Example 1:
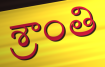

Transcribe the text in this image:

శ్రాంతి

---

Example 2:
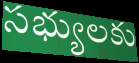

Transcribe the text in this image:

సభ్యులకు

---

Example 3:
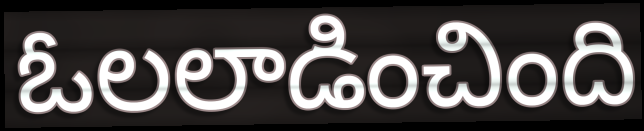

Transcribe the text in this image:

ఓలలాడించింది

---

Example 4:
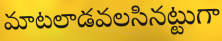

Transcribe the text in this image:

మాటలాడవలసినట్టుగా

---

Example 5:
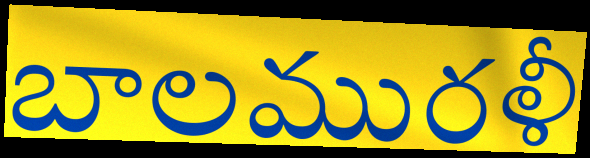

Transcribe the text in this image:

బాలమురళీ